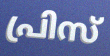
പ്രിസ്